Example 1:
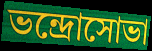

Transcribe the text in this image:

ভন্দ্রোসোভা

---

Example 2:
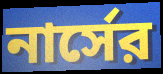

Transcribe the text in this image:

নার্সের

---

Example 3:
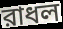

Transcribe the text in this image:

রাধল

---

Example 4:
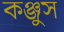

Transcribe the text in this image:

কঞ্জুস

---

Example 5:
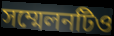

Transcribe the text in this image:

সম্মেলনটিও